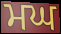
ਮਘ